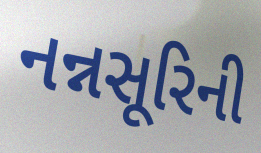
નન્નસૂરિની